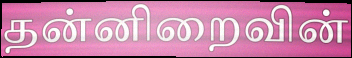
தன்னிறைவின்